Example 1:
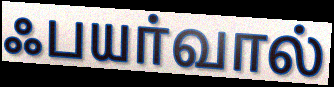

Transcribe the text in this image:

ஃபயர்வால்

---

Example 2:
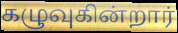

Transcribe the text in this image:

கழுவுகின்றார்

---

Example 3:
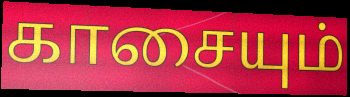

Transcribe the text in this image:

காசையும்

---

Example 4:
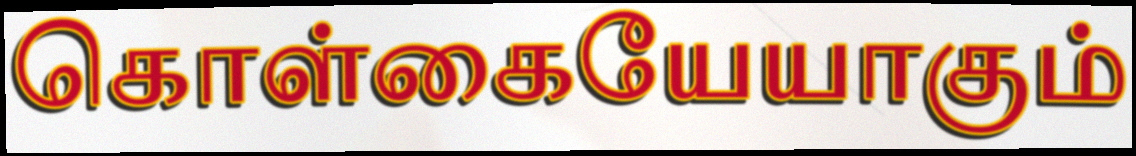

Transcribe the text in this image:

கொள்கையேயாகும்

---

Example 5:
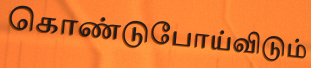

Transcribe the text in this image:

கொண்டுபோய்விடும்